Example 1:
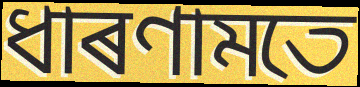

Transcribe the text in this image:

ধাৰণামতে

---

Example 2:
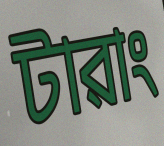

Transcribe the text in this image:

টাৱাং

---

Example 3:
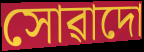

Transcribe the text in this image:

সোৱাদো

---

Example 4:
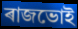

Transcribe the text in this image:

ৰাজভোই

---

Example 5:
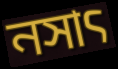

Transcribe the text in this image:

নসাৎ